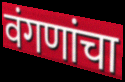
वंगणांचा